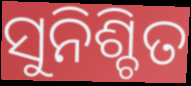
ସୁନିଶ୍ଚିତ